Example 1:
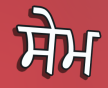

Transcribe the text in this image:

ਸੇਮ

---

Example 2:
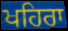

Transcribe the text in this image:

ਖਹਿਰਾ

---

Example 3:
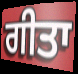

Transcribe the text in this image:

ਗੀਤਾ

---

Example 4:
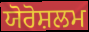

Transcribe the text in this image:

ਯੋਰੋਸ਼ਲਮ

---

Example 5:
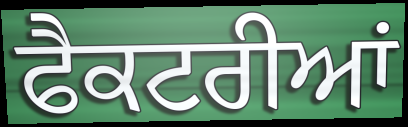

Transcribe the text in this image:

ਫੈਕਟਰੀਆਂ